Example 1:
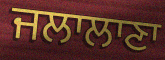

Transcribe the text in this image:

ਜਲਾਲਾਣਾ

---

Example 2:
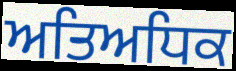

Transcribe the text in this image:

ਅਤਿਅਧਿਕ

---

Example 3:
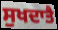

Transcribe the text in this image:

ਸੁਖਦਾਤੈ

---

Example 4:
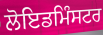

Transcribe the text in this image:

ਲੋਇਡਮਿੰਸਟਰ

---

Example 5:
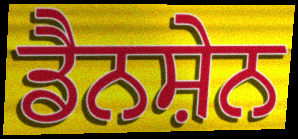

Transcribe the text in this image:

ਡੈਨਸ਼ੇਨ